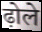
ढ़ोले